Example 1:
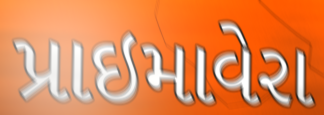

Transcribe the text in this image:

પ્રાઇમાવેરા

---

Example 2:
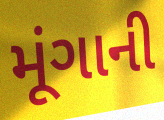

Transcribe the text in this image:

મૂંગાની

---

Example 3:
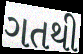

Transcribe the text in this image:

ગતથી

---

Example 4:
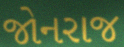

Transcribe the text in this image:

જોનરાજ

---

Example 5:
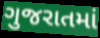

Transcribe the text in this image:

ગુજરાતમાં